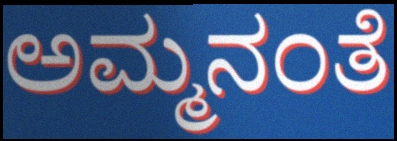
ಅಮ್ಮನಂತೆ